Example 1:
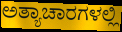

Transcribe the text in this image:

ಅತ್ಯಾಚಾರಗಳಲ್ಲಿ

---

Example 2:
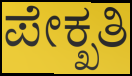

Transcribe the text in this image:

ಪೇಕ್ಖತಿ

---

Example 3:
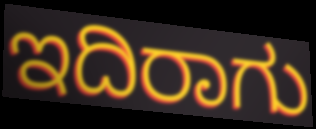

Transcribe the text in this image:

ಇದಿರಾಗು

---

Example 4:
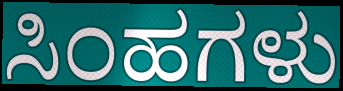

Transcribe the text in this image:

ಸಿಂಹಗಳು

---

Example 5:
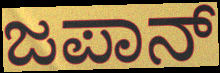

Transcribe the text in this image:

ಜಪಾನ್